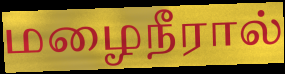
மழைநீரால்